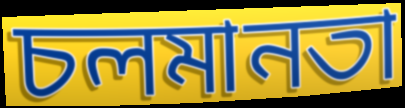
চলমানতা